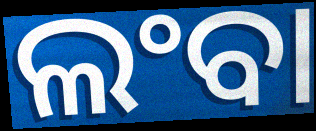
ଲଂବା